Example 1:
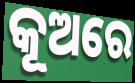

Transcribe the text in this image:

କୂଅରେ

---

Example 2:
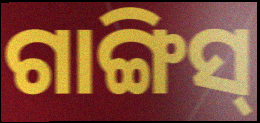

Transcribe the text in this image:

ଗାଙ୍ଗିସ୍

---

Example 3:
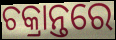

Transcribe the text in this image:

ଚକ୍ରାନ୍ତରେ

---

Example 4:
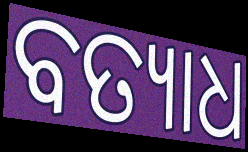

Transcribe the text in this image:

ବତ୍ୟାଧ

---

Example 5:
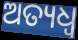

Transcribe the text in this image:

ଅତ୍ୟଧ୍ୱ